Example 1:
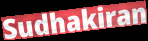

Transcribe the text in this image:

Sudhakiran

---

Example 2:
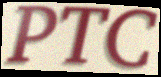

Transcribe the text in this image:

PTC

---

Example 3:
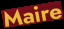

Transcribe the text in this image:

Maire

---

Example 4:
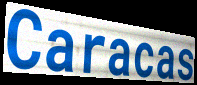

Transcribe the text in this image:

Caracas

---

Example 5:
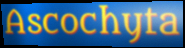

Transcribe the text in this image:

Ascochyta